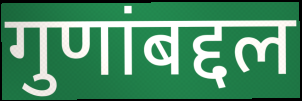
गुणांबद्दल